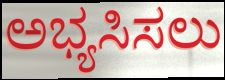
ಅಭ್ಯಸಿಸಲು